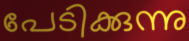
പേടിക്കുന്നു